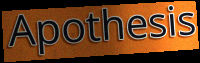
Apothesis